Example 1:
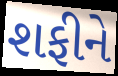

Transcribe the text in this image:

શફીને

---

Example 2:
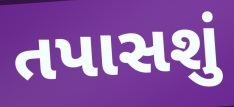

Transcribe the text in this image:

તપાસશું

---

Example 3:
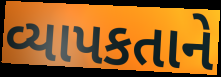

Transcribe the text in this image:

વ્યાપકતાને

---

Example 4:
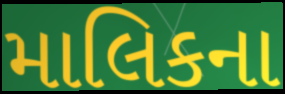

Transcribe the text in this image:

માલિકના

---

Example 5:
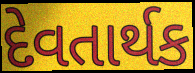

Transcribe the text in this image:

દેવતાર્થક